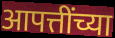
आपत्तींच्या